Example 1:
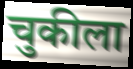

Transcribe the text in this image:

चुकीला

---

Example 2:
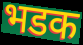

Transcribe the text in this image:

भडक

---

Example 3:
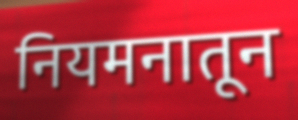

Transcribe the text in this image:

नियमनातून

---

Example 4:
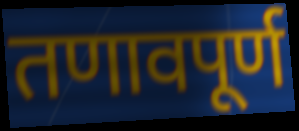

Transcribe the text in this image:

तणावपूर्ण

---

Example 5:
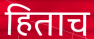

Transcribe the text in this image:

हिताच